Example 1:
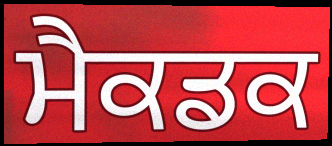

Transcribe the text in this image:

ਮੈਕਡਕ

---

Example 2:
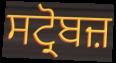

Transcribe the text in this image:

ਸਟ੍ਰੋਬਜ਼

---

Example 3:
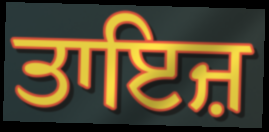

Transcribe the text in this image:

ਤਾਇਜ਼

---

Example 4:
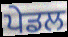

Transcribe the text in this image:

ਪੇਡਲ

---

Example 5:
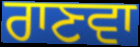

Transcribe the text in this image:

ਰਾਣਵਾ